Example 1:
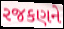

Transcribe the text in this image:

રજકણને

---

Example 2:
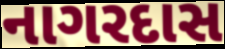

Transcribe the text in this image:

નાગરદાસ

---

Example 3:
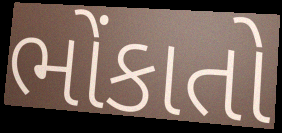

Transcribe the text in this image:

ભોંકાતો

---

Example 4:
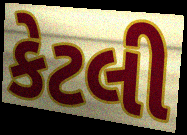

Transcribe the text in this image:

કેટલી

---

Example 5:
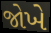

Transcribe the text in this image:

જોખે